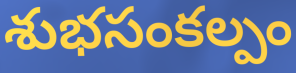
శుభసంకల్పం